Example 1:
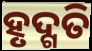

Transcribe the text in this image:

ହୃଦ୍ଗତି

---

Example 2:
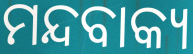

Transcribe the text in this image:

ମନ୍ଦବାକ୍ୟ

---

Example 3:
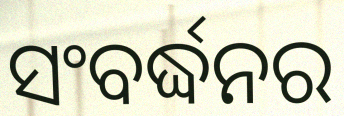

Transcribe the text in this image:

ସଂବର୍ଦ୍ଧନର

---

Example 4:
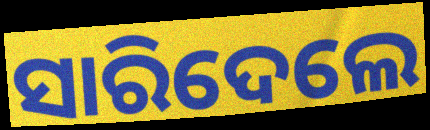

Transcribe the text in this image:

ସାରିଦେଲେ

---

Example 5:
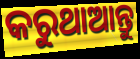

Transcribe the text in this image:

କରୁଥାଆନ୍ତୁ